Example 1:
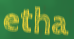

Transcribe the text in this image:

etha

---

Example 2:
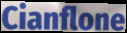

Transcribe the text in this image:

Cianflone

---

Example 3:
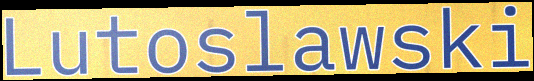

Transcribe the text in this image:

Lutoslawski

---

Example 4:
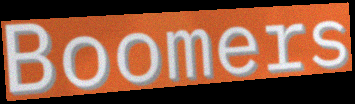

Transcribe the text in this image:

Boomers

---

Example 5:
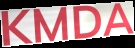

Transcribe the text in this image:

KMDA